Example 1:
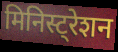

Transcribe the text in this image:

मिनिस्ट्रेशन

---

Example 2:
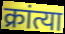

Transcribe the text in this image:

क्रांत्या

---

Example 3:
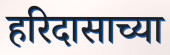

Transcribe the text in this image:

हरिदासाच्या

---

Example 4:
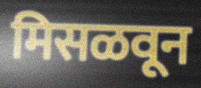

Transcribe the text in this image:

मिसळवून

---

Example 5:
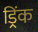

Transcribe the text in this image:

ड्रिंक